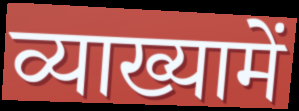
व्याख्यामें